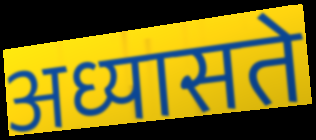
अध्यासते